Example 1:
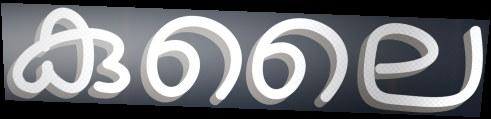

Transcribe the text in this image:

കുലൈ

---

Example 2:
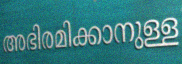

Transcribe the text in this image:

അഭിരമിക്കാനുള്ള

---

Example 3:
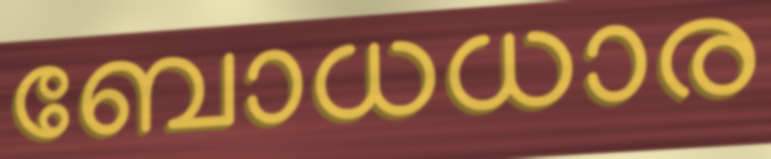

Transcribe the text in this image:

ബോധധാര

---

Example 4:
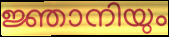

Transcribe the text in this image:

ജ്ഞാനിയും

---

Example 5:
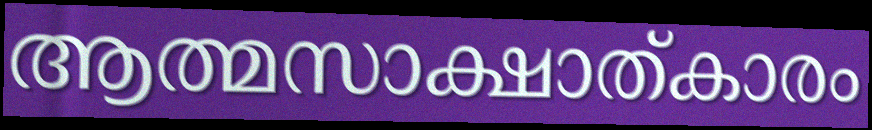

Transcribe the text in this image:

ആത്മസാക്ഷാത്കാരം